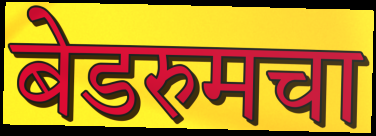
बेडरुमचा